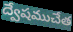
ద్వేషముచేత